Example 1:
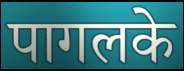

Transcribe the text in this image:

पागलके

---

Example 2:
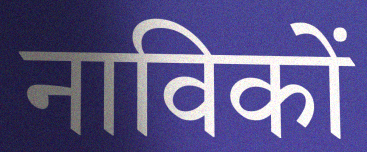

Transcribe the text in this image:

नाविकों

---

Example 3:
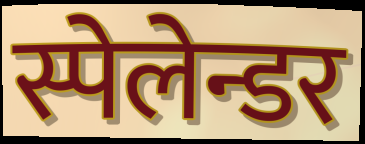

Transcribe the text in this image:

स्पेलेन्डर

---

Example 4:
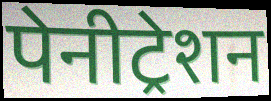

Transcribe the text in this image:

पेनीट्रेशन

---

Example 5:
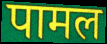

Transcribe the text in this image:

पामल